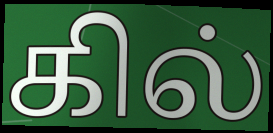
கில்